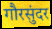
गौरसुंदर